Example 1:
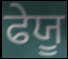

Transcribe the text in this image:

ਫੇਯੂ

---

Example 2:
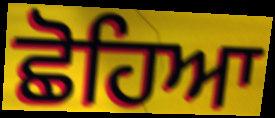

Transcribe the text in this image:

ਛੋਹਿਆ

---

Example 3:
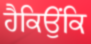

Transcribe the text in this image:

ਹੈਕਿਉਂਕਿ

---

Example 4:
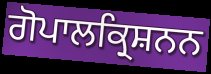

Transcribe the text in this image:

ਗੋਪਾਲਕ੍ਰਿਸ਼ਨਨ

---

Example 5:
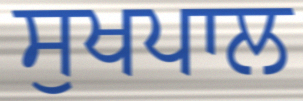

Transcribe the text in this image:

ਸੁਖਪਾਲ